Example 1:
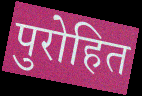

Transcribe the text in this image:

पुरोहित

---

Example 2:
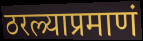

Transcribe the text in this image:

ठरल्याप्रमाणं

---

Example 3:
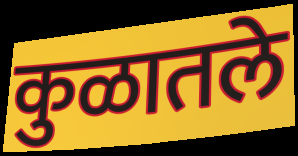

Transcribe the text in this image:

कुळातले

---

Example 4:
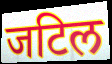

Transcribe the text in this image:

जटिल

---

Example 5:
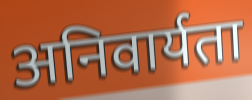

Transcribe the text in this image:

अनिवार्यता